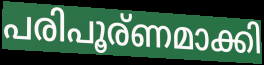
പരിപൂര്ണമാക്കി